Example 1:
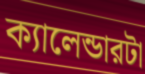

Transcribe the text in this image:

ক্যালেন্ডারটা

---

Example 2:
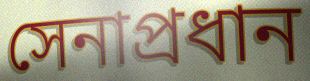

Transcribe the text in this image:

সেনাপ্রধান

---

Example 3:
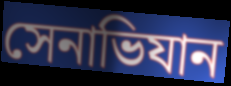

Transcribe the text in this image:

সেনাভিযান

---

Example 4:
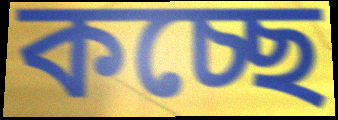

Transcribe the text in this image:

কচ্ছে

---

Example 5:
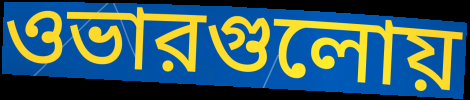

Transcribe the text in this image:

ওভারগুলোয়